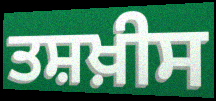
ਤਸ਼ਖ਼ੀਸ